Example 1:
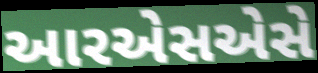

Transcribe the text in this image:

આરએસએસે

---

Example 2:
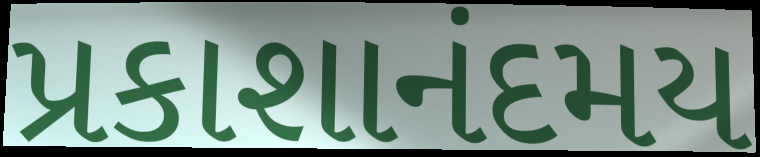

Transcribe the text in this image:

પ્રકાશાનંદમય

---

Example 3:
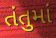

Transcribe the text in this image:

તંતુમાં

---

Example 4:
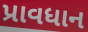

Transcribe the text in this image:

પ્રાવધાન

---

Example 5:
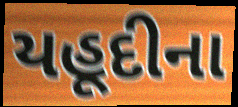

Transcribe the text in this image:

યહૂદીના